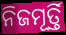
ନିଜମୂର୍ତ୍ତି